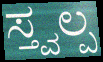
ಸ್ತ್ವಲ್ಪ